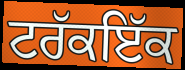
ਟਰੱਕਇੱਕ